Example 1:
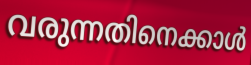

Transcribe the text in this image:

വരുന്നതിനെക്കാൾ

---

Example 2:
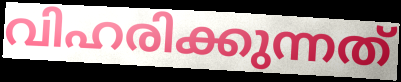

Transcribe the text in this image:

വിഹരിക്കുന്നത്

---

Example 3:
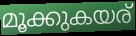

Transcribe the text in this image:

മൂക്കുകയര്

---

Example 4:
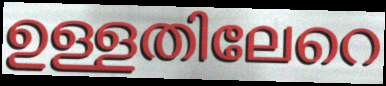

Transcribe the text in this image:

ഉള്ളതിലേറെ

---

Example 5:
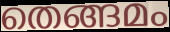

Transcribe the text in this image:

തെങ്ങമം